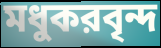
মধুকরবৃন্দ